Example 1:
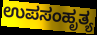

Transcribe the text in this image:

ಉಪಸಂಹೃತ್ಯ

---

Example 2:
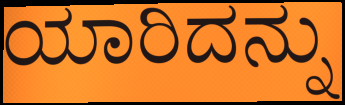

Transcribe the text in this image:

ಯಾರಿದನ್ನು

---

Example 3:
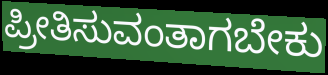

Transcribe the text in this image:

ಪ್ರೀತಿಸುವಂತಾಗಬೇಕು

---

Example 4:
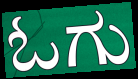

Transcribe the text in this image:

ಓಗು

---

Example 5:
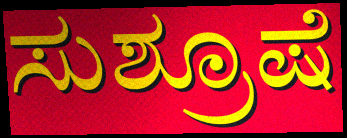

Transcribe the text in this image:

ಸುಶ್ರೂಷೆ